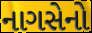
નાગસેનો